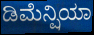
ಡಿಮೆನ್ಷಿಯಾ